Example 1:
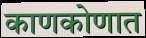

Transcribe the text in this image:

काणकोणात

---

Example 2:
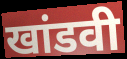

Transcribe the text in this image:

खांडवी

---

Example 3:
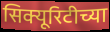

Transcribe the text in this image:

सिक्यूरिटीच्या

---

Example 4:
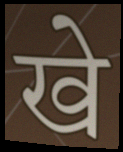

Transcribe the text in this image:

खे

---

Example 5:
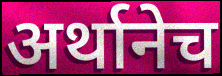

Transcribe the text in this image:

अर्थानेच